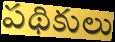
పథికులు